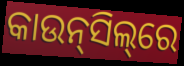
କାଉନ୍‌ସିଲ୍‌ରେ